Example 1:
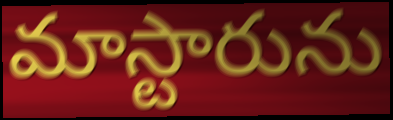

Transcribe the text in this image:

మాస్టారును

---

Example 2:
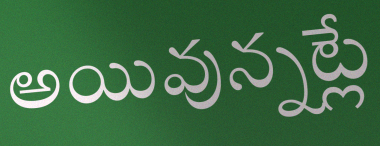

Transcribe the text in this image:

అయివున్నట్లే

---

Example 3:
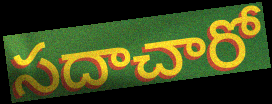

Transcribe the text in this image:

సదాచారో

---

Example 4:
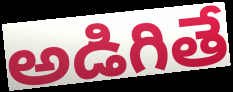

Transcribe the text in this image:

అడిగితే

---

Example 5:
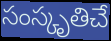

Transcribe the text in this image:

సంస్కృతిచే